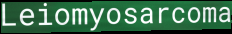
Leiomyosarcoma